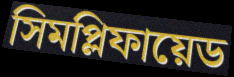
সিমপ্লিফায়েড